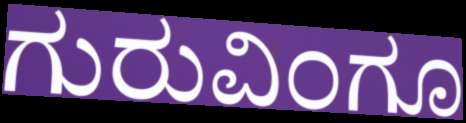
ಗುರುವಿಂಗೂ